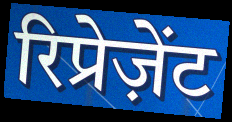
रिप्रेज़ेंट